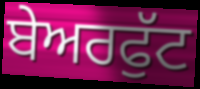
ਬੇਅਰਫੁੱਟ